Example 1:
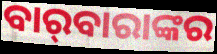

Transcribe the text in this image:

ବାର୍‌ବାରାଙ୍କର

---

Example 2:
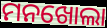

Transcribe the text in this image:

ମନଖୋଲା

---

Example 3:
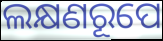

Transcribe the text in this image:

ଲକ୍ଷଣରୂପେ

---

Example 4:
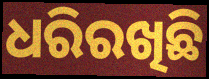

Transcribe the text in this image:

ଧରିରଖିଛି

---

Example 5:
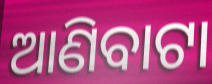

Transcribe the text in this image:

ଆଣିବାଟା